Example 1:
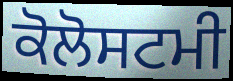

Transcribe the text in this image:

ਕੋਲੋਸਟਮੀ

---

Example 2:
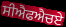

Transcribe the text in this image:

ਸੀਐਫਐਚਏ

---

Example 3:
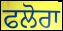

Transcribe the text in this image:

ਫਲੋਰਾ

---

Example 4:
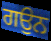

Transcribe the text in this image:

ਗਉਨ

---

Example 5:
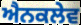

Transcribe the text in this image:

ਐਨਕਲੇਵ